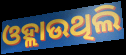
ଓହ୍ଲାଉଥିଲି